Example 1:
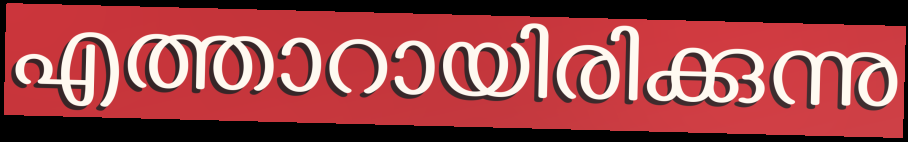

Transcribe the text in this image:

എത്താറായിരിക്കുന്നു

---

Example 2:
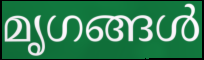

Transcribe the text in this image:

മൃഗങ്ങൾ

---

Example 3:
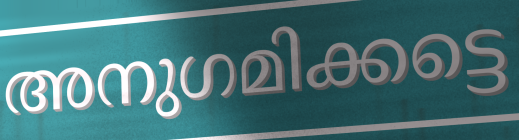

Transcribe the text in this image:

അനുഗമിക്കട്ടെ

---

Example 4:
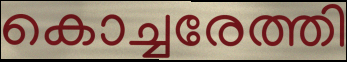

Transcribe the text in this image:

കൊച്ചരേത്തി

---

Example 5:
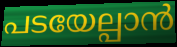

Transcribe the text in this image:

പടയേല്പാൻ